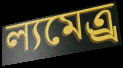
ল্যমেত্র্র